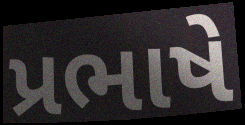
પ્રભાષે